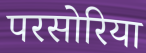
परसोरिया